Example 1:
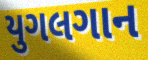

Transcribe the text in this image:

યુગલગાન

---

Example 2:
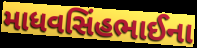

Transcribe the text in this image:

માધવસિંહભાઈના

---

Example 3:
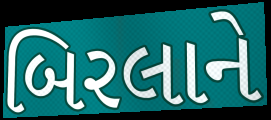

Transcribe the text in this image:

બિરલાને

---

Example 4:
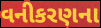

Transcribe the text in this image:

વનીકરણના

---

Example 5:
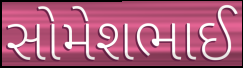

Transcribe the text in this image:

સોમેશભાઈ